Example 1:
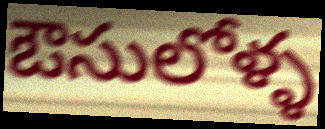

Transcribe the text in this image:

ఔసులోళ్ళ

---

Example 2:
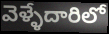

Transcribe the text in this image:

వెళ్ళేదారిలో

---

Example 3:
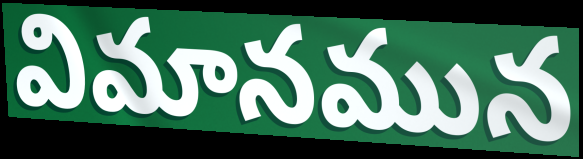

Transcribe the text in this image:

విమానమున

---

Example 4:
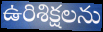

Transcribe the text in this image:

ఉరిశిక్షలను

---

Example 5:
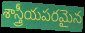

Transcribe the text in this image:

శాస్త్రీయపరమైన